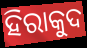
ହିରାକୁଦ